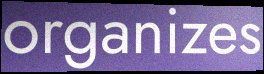
organizes